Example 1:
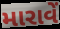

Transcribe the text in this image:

મારાવેં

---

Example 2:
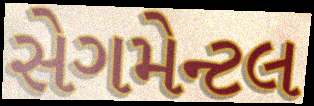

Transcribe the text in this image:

સેગમેન્ટલ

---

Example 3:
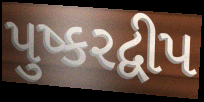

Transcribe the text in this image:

પુષ્કરદ્વીપ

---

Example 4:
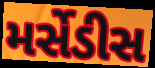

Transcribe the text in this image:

મર્સેડીસ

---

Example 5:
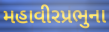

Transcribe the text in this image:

મહાવીરપ્રભુના